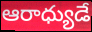
ఆరాధ్యుడే